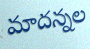
మాదన్నల